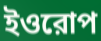
ইওরোপ